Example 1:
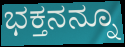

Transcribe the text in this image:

ಭಕ್ತನನ್ನೂ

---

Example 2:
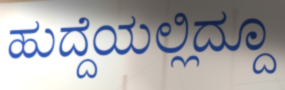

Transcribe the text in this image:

ಹುದ್ದೆಯಲ್ಲಿದ್ದೂ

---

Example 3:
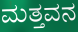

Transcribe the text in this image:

ಮತ್ತವನ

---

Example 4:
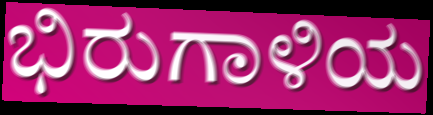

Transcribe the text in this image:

ಭಿರುಗಾಳಿಯ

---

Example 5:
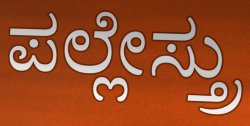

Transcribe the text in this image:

ಪಲ್ಲೇಸ್ತ್ರು